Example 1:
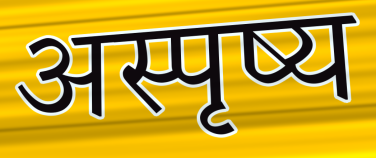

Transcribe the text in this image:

अस्पृष्य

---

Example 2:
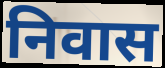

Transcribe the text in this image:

निवास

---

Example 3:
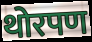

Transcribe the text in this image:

थोरपण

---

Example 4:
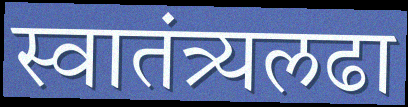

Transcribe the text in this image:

स्वातंत्र्यलढा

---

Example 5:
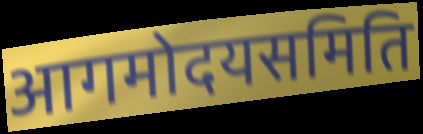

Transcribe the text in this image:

आगमोदयसमिति